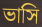
ভাসি